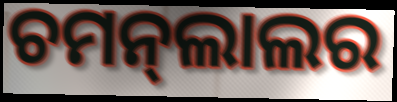
ଚମନ୍‍ଲାଲର